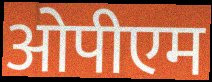
ओपीएम